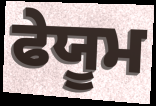
ਫੇਯੂਮ